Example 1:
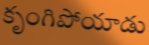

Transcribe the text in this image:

కృంగిపోయాడు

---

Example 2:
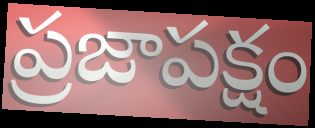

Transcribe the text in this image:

ప్రజాపక్షం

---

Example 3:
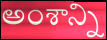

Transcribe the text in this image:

అంశాన్ని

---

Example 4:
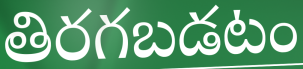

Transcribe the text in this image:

తిరగబడటం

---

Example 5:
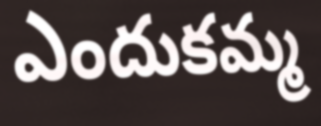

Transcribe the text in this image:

ఎందుకమ్మ